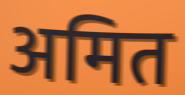
अमित